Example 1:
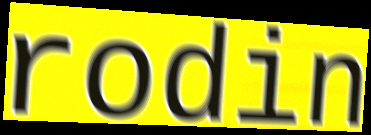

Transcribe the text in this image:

rodin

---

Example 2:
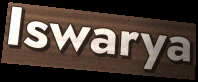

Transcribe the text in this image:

Iswarya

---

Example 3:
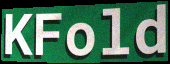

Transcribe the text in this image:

KFold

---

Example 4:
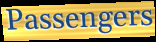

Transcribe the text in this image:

Passengers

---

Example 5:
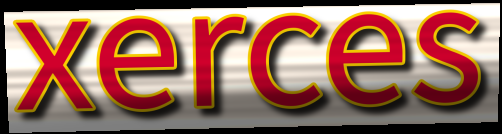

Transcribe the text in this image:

xerces